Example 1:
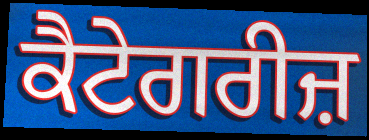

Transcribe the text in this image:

ਕੈਟੇਗਰੀਜ਼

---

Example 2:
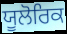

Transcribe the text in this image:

ਯੂਲੋਰਿਕ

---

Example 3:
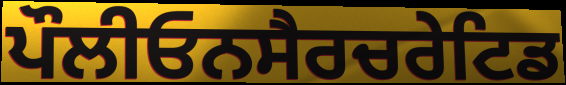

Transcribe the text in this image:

ਪੌਲੀਓਨਸੈਰਚਰੇਟਿਡ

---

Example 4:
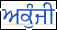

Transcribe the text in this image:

ਅਕੁੰਜੀ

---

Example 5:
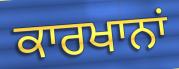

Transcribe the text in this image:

ਕਾਰਖਾਨਾਂ